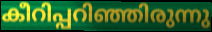
കീറിപ്പറിഞ്ഞിരുന്നു